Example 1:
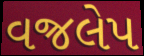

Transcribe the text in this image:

વજ્રલેપ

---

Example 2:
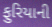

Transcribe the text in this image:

ફુરિયાની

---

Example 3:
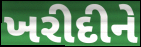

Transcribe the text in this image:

ખરીદીને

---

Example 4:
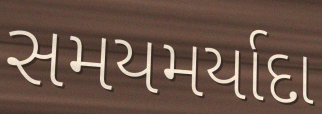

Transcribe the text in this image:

સમયમર્યાદા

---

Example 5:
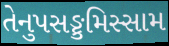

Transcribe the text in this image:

તેનુપસઙ્કમિસ્સામ